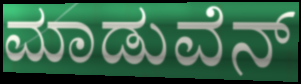
ಮಾಡುವೆನ್